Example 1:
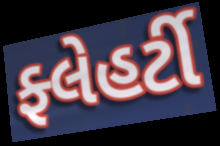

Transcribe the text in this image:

ફ્લેહર્ટી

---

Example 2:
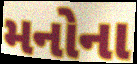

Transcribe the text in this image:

મનોના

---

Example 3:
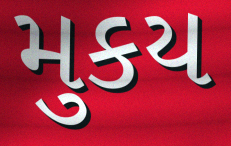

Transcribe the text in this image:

મુકય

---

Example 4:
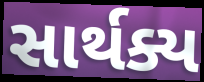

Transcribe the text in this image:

સાર્થક્ય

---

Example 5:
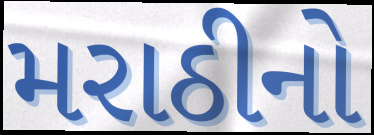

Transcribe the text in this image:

મરાઠીનો